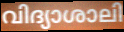
വിദ്യാശാലി